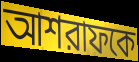
আশরাফকে